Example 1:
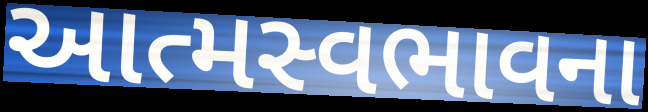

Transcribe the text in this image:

આત્મસ્વભાવના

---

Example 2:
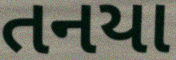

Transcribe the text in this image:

તનયા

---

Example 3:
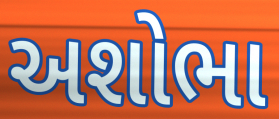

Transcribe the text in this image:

અશોભા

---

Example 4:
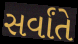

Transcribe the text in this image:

સર્વાંતે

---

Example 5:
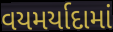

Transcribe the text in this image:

વયમર્યાદામાં